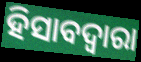
ହିସାବଦ୍ଵାରା